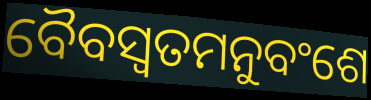
ବୈବସ୍ଵତମନୁବଂଶେ